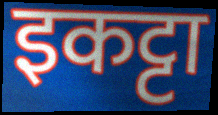
इकट्टा